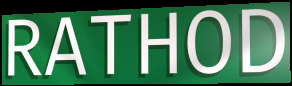
RATHOD